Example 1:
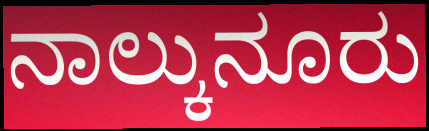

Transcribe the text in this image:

ನಾಲ್ಕುನೂರು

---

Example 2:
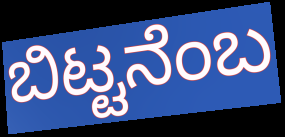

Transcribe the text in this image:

ಬಿಟ್ಟನೆಂಬ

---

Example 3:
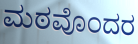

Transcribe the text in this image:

ಮಠವೊಂದರ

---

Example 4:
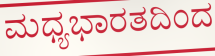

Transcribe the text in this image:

ಮಧ್ಯಭಾರತದಿಂದ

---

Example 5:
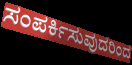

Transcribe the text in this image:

ಸಂಪರ್ಕಿಸುವುದರಿಂದ